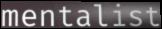
mentalist